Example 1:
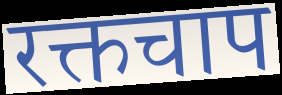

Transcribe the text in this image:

रक्तचाप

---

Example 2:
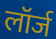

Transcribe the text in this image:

लॉर्ज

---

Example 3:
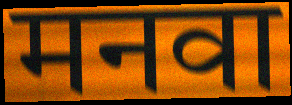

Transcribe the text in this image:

मनवा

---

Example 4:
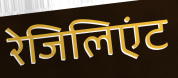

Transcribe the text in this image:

रेजिलिएंट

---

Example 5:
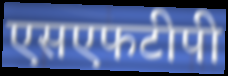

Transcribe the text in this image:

एसएफटीपी